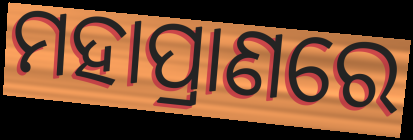
ମହାପ୍ରାଣରେ